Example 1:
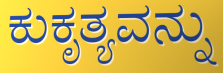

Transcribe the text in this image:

ಕುಕೃತ್ಯವನ್ನು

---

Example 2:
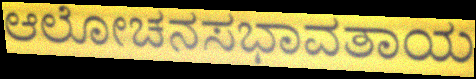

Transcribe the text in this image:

ಆಲೋಚನಸಭಾವತಾಯ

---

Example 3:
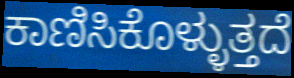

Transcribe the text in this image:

ಕಾಣಿಸಿಕೊಳ್ಳುತ್ತದೆ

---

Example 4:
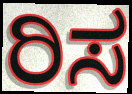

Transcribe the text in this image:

ರಿಸ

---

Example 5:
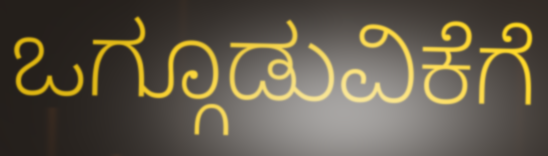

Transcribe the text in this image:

ಒಗ್ಗೂಡುವಿಕೆಗೆ